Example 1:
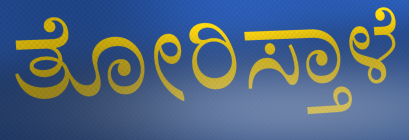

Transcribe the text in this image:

ತೋರಿಸ್ತಾಳೆ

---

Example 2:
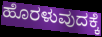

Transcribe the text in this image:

ಹೊರಳುವುದಕ್ಕೆ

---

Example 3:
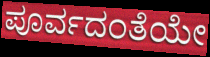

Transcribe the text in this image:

ಪೂರ್ವದಂತೆಯೇ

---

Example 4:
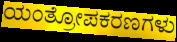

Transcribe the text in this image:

ಯಂತ್ರೋಪಕರಣಗಳು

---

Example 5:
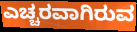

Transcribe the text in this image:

ಎಚ್ಚರವಾಗಿರುವ